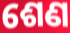
ଶେଣ